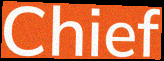
Chief